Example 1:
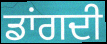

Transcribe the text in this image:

ਡਾਂਗਦੀ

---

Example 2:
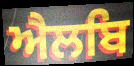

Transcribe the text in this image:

ਐਲਬਿ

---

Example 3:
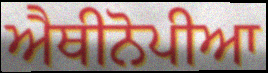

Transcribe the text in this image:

ਐਥੀਨੋਪੀਆ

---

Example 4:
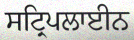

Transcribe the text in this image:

ਸਟ੍ਰਿਪਲਾਈਨ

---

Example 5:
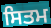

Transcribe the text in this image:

ਸਿਤਮ